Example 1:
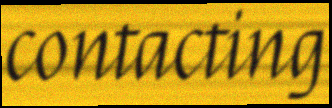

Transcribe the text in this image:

contacting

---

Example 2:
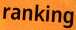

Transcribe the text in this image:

ranking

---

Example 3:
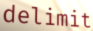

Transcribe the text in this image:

delimit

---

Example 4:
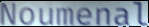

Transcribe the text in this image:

Noumenal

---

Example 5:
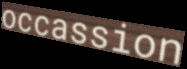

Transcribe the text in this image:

occassion